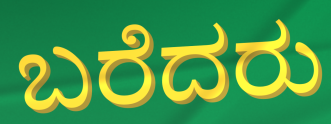
ಬರೆದರು